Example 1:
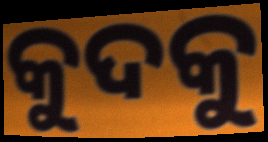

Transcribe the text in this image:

କୁଦକୁ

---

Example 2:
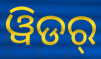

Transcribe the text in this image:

ୱିଡର୍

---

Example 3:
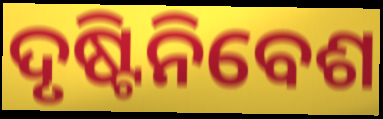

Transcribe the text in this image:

ଦୃଷ୍ଟିନିବେଶ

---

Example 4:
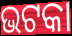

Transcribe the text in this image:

ଭଟକା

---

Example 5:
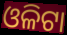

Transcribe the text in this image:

ଓଳିଟା